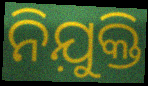
ନିଯ଼ୁକ୍ତି